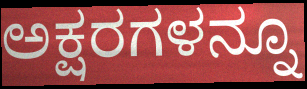
ಅಕ್ಷರಗಳನ್ನೂ